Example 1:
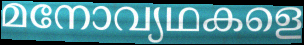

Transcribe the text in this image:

മനോവ്യഥകളെ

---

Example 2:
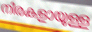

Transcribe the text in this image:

നിരകളായുള്ള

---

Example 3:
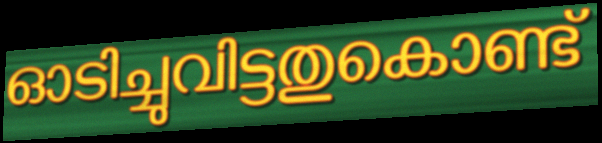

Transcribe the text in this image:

ഓടിച്ചുവിട്ടതുകൊണ്ട്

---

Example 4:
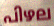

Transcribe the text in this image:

പിഴല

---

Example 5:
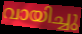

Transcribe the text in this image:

വായിച്ചു